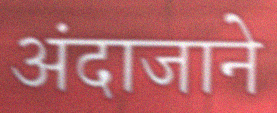
अंदाजाने